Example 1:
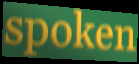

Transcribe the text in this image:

spoken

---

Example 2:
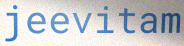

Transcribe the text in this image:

jeevitam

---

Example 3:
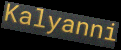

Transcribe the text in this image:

Kalyanni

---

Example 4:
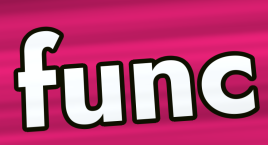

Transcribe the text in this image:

func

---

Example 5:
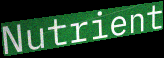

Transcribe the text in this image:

Nutrient